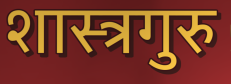
शास्त्रगुरु